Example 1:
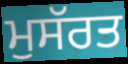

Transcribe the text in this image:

ਮੁਸੱਰਤ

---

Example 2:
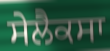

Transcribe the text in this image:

ਸੇਲੈਕਸਾ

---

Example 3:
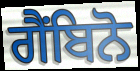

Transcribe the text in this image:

ਗੈਂਬਿਨੋ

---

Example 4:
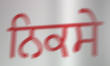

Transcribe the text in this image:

ਨਿਕਸੇ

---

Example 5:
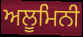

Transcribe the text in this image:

ਅਲੂਮਿਨੀ